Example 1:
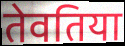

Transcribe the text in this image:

तेवतिया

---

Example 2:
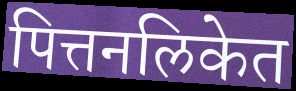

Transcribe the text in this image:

पित्तनलिकेत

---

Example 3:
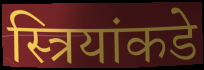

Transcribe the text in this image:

स्त्रियांकडे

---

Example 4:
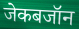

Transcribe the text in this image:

जेकबजॉन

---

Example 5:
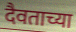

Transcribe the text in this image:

दैवताच्या